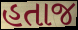
હતાજ